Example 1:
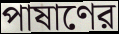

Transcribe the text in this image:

পাষাণের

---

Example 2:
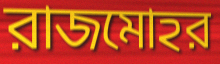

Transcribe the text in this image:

রাজমোহর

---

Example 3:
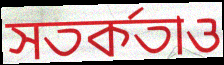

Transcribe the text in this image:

সতর্কতাও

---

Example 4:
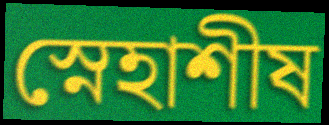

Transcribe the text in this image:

স্নেহাশীষ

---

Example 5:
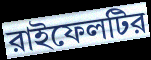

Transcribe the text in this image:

রাইফেলটির